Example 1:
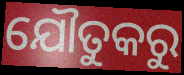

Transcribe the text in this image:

ଯୌତୁକରୁ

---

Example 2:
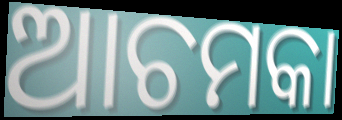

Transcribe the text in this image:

ଆଚମକା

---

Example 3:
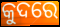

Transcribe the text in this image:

କୁଦରେ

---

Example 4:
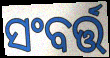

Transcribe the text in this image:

ସଂବର୍ତ୍ତ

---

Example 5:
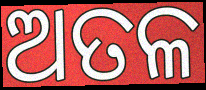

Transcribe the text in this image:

ଅତଳ